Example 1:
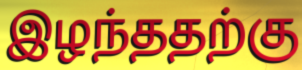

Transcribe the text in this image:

இழந்ததற்கு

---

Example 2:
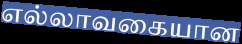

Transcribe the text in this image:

எல்லாவகையான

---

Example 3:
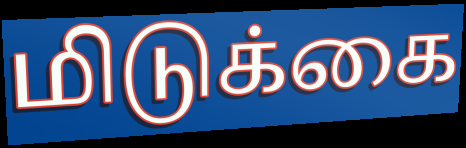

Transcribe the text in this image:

மிடுக்கை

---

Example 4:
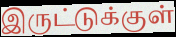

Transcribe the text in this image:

இருட்டுக்குள்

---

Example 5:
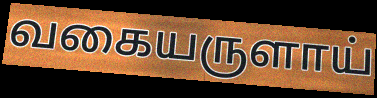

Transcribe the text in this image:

வகையருளாய்